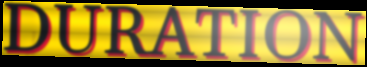
DURATION